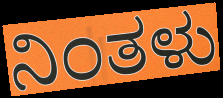
ನಿಂತಳು